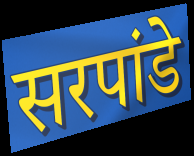
सरपांडे